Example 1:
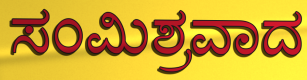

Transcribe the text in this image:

ಸಂಮಿಶ್ರವಾದ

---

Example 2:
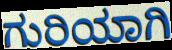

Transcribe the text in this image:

ಗುರಿಯಾಗಿ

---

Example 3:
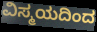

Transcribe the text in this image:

ವಿಸ್ಮಯದಿಂದ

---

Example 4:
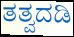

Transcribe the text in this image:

ತತ್ವದಡಿ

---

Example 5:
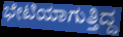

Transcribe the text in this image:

ಭೇಟಿಯಾಗುತ್ತಿದ್ದ